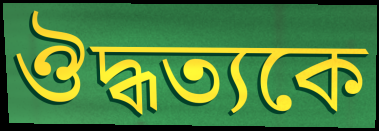
ঔদ্ধত্যকে